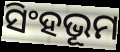
ସିଂହଭୂମ